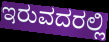
ಇರುವದರಲ್ಲಿ